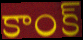
కాంక్